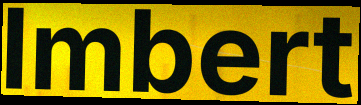
Imbert